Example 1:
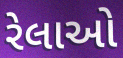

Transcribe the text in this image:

રેલાઓ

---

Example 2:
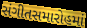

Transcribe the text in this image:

સંગીતસમારોહમાં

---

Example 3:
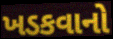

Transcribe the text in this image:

ખડકવાનો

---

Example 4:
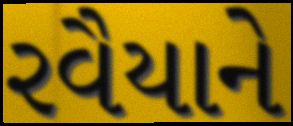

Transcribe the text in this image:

રવૈયાને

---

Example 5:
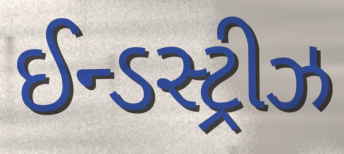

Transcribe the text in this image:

ઈન્ડસ્ટ્રીઝ